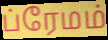
ப்ரேமம்